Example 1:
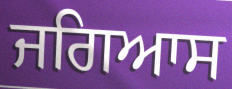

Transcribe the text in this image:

ਜਗਿਆਸ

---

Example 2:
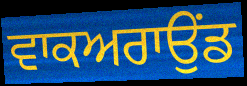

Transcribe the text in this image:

ਵਾਕਅਰਾਉਂਡ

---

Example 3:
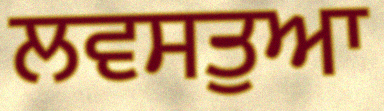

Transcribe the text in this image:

ਲਵਸਤੁਆ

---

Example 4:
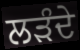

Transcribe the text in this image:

ਲੜੰਦੇ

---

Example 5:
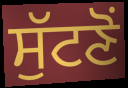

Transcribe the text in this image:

ਸੁੱਟਣੋਂ